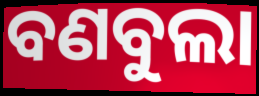
ବଣବୁଲା